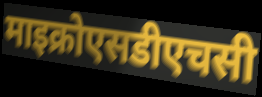
माइक्रोएसडीएचसी